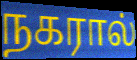
நகரால்